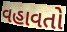
વહાવતો